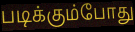
படிக்கும்போது